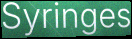
Syringes